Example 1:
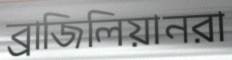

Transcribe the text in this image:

ব্রাজিলিয়ানরা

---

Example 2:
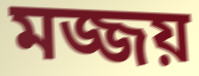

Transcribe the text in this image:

মজ্জয়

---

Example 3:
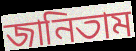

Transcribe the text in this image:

জানিতাম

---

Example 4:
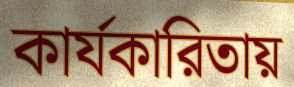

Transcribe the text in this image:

কার্যকারিতায়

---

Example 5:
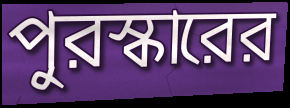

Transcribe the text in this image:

পুরস্কারের